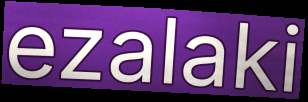
ezalaki